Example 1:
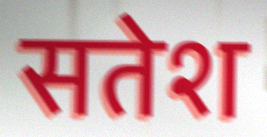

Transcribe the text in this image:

सतेश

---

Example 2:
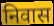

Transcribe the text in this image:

निवास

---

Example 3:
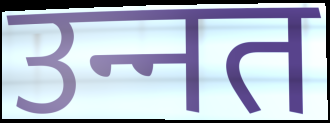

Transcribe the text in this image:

उन्‍नत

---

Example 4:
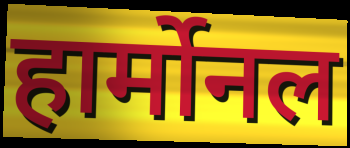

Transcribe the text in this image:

हार्मोनल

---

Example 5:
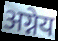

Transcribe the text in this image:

अग्नेय